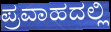
ಪ್ರವಾಹದಲ್ಲಿ